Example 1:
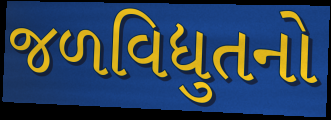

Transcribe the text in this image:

જળવિદ્યુતનો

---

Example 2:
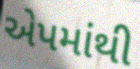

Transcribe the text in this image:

એપમાંથી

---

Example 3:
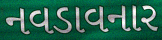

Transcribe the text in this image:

નવડાવનાર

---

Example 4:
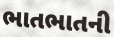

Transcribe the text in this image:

ભાતભાતની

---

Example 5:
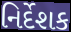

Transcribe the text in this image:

નિર્દેશક